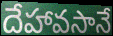
దేహావసానే